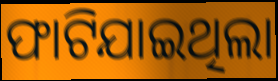
ଫାଟିଯାଇଥିଲା